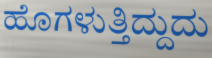
ಹೊಗಳುತ್ತಿದ್ದುದು